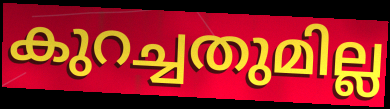
കുറച്ചതുമില്ല